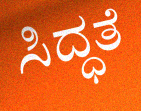
ಸಿದ್ಧತೆ